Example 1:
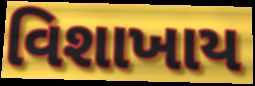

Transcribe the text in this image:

વિશાખાય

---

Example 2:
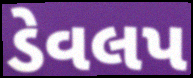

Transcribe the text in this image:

ડેવલપ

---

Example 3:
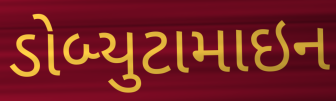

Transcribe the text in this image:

ડોબ્યુટામાઇન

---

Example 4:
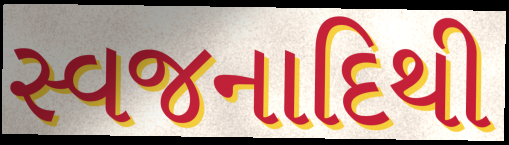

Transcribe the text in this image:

સ્વજનાદિથી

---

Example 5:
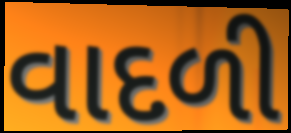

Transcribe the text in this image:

વાદળી